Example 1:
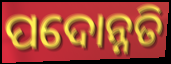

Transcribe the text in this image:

ପଦୋନ୍ନତି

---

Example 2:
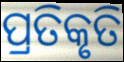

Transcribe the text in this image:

ପ୍ରତିକୃତି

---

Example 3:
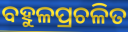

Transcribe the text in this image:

ବହୁଳପ୍ରଚଳିତ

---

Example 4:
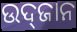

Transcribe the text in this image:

ଉଦ୍‌ଜାନ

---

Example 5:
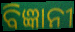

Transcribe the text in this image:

ବିଜ୍ଞାନୀ